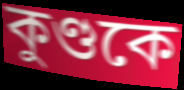
কুণ্ডকে